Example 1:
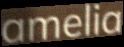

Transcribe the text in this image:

amelia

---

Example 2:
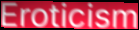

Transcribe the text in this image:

Eroticism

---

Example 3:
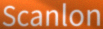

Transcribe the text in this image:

Scanlon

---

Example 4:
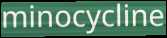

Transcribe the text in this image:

minocycline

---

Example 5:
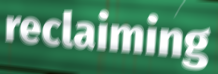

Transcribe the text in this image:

reclaiming